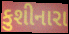
કુશીનારા